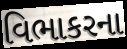
વિભાકરના